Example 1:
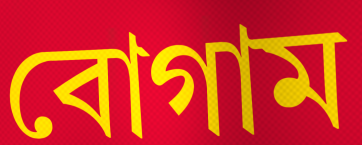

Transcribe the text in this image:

বোগাম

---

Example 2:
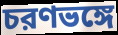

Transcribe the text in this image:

চরণভঙ্গে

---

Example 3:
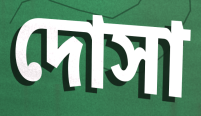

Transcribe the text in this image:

দোসা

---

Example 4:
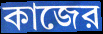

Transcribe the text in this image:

কাজের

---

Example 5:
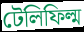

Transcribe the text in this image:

টেলিফিল্ম